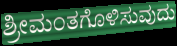
ಶ್ರೀಮಂತಗೊಳಿಸುವುದು